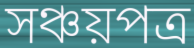
সঞ্চয়পত্র